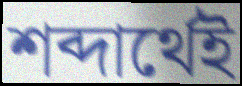
শব্দার্থেই